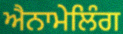
ਐਨਾਮੇਲਿੰਗ